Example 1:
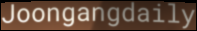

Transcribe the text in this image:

Joongangdaily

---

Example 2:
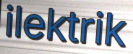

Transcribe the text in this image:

ilektrik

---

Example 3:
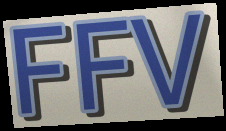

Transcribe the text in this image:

FFV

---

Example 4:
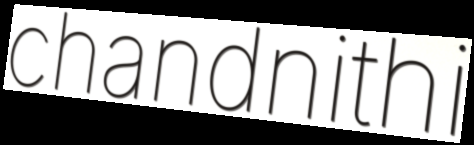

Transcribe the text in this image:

chandnithi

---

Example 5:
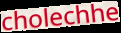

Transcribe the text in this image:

cholechhe